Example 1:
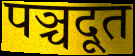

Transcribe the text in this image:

पञ्चदूत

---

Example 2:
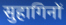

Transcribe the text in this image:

सुहागिनों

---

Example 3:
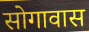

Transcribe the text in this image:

सोगावास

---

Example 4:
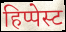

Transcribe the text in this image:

हिप्पेस्ट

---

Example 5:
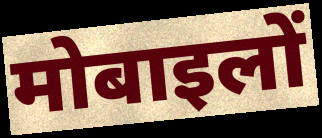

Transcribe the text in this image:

मोबाइलों